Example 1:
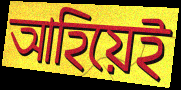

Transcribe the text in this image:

আহিয়েই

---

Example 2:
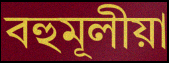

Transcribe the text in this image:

বহুমূলীয়া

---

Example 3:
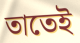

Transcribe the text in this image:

তাতেই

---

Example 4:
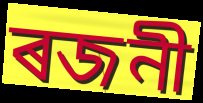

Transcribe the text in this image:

ৰজনী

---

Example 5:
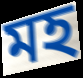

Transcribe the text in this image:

মহ